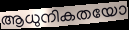
ആധുനികതയോ